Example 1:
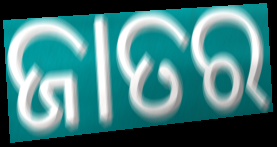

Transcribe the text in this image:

ଜାତର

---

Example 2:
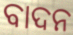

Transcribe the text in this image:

ବାଦନ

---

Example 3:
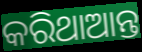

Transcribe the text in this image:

କରିଥାଆନ୍ତ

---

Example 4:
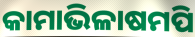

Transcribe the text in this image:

କାମାଭିଳାଷମପି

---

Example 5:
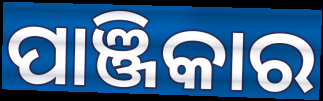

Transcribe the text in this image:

ପାଞ୍ଜିକାର